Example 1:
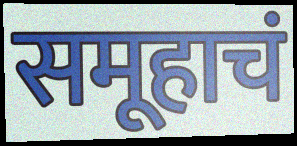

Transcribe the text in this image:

समूहाचं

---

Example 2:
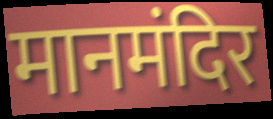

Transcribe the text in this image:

मानमंदिर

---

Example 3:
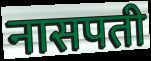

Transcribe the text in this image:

नासपती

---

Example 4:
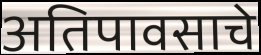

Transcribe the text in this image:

अतिपावसाचे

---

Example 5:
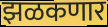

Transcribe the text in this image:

झळकणार